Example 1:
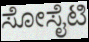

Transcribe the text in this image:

ಸೋಸೈಟಿ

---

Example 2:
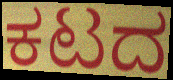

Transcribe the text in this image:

ಕಟದ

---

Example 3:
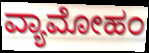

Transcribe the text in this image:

ವ್ಯಾಮೋಹಂ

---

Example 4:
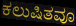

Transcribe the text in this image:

ಕಲುಷಿತವೂ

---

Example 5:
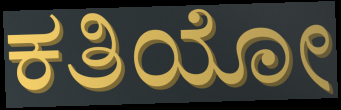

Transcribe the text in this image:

ಕತಿಯೋ